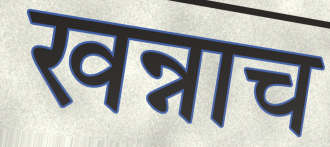
खन्नाच